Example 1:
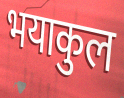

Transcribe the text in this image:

भयाकुल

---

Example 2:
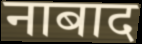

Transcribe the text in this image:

नाबाद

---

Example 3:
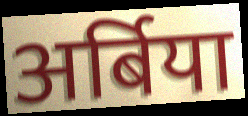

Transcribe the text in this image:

अर्बिया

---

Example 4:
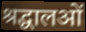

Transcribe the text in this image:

श्रद्धालओं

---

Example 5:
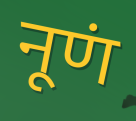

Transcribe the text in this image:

नूणं